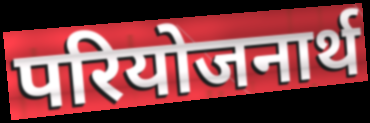
परियोजनार्थ